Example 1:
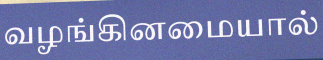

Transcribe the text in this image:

வழங்கினமையால்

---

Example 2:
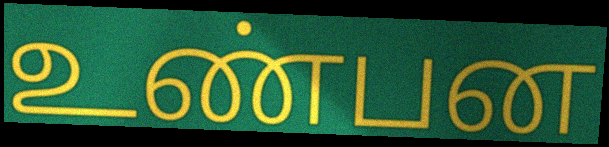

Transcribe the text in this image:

உண்பன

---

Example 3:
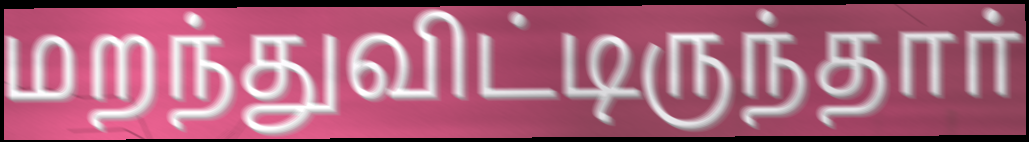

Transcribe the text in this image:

மறந்துவிட்டிருந்தார்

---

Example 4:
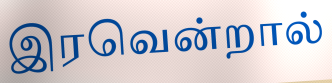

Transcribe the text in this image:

இரவென்றால்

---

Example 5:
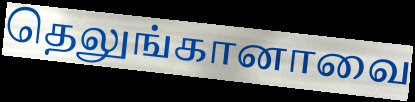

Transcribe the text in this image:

தெலுங்கானாவை